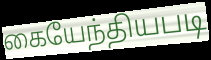
கையேந்தியபடி